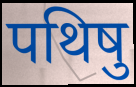
पथिषु